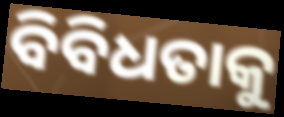
ବିବିଧତାକୁ